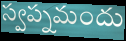
స్వప్నమందు